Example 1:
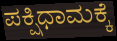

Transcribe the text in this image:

ಪಕ್ಷಿಧಾಮಕ್ಕೆ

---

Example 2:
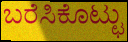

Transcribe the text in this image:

ಬರೆಸಿಕೊಟ್ಟು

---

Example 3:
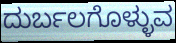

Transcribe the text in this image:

ದುರ್ಬಲಗೊಳ್ಳುವ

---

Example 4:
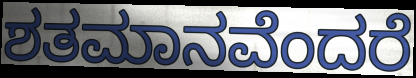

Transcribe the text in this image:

ಶತಮಾನವೆಂದರೆ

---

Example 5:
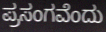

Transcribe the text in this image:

ಪ್ರಸಂಗವೆಂದು